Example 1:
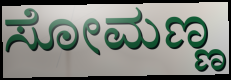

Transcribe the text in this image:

ಸೋಮಣ್ಣ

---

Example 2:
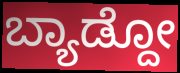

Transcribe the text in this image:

ಬ್ಯಾಡ್ದೋ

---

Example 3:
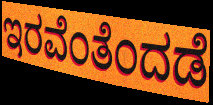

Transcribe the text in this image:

ಇರವೆಂತೆಂದಡೆ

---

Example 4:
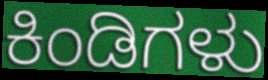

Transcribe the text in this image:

ಕಿಂಡಿಗಳು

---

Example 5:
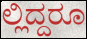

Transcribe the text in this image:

ಲ್ಲಿದ್ದರೂ